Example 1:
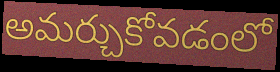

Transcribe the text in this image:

అమర్చుకోవడంలో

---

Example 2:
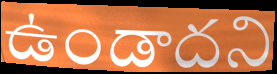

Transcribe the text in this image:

ఉండాదని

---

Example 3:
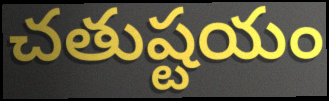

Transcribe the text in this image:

చతుష్టయం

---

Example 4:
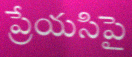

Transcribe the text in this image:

ప్రేయసిపై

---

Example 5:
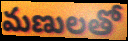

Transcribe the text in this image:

మణులతో